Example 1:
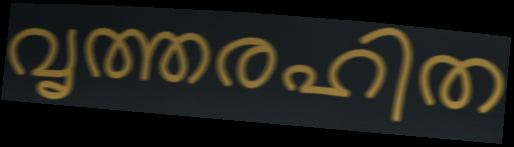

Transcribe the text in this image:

വൃത്തരഹിത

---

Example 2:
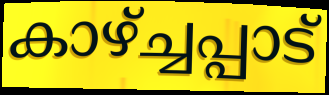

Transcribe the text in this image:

കാഴ്ച്ചപ്പാട്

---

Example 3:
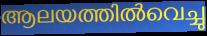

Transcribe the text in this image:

ആലയത്തിൽവെച്ചു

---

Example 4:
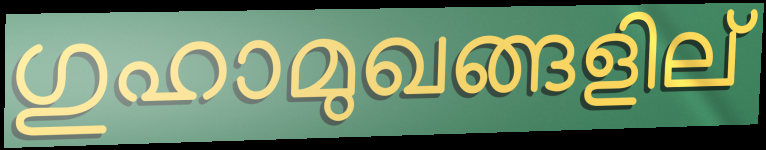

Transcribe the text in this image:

ഗുഹാമുഖങ്ങളില്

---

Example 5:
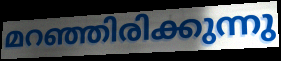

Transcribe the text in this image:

മറഞ്ഞിരിക്കുന്നു